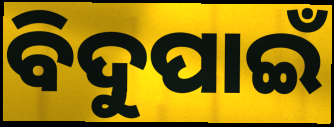
ବିଦୁପାଇଁ